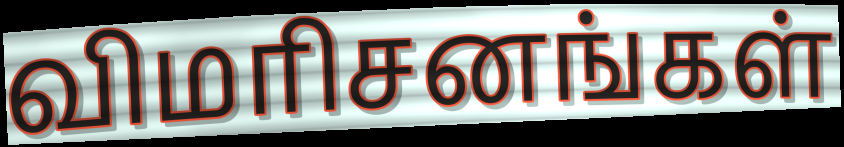
விமரிசனங்கள்